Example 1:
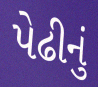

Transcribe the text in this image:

પેઢીનું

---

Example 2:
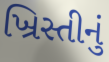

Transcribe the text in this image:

ખ્રિસ્તીનું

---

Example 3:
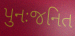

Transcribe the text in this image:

પુનઃજનિત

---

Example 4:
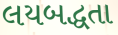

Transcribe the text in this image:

લયબદ્ધતા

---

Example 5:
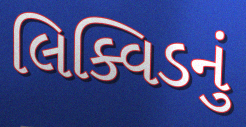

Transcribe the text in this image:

લિક્વિડનું